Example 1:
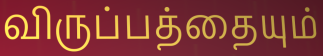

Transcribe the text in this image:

விருப்பத்தையும்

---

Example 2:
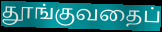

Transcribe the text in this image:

தூங்குவதைப்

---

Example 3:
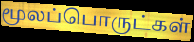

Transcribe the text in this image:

மூலப்பொருட்கள்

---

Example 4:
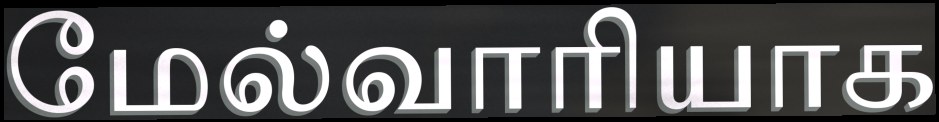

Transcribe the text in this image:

மேல்வாரியாக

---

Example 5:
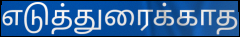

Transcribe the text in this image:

எடுத்துரைக்காத